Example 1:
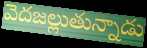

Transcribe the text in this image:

వెదజల్లుతున్నాడు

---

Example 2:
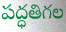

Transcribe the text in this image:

పద్ధతిగల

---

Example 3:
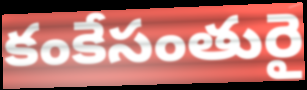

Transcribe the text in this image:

కంకేసంతురై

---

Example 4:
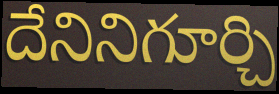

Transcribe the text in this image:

దేనినిగూర్చి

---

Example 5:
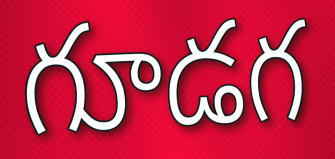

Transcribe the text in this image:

గూడగ